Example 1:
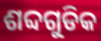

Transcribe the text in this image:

ଶବ୍ଦଗୁଡିକ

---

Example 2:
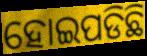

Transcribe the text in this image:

ହୋଇପଡିଛି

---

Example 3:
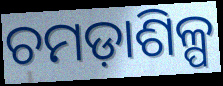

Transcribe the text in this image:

ଚମଡ଼ାଶିଳ୍ପ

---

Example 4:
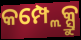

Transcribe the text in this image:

କମ୍ପ୍ଲେକ୍ସ୍ରୁ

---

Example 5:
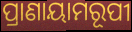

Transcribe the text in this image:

ପ୍ରାଣାୟାମରୂପୀ